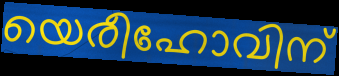
യെരീഹോവിന്